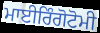
ਮਾਈਰਿੰਗੋਟੋਮੀ